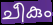
ചീകും